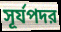
সূর্যপদর